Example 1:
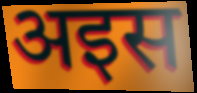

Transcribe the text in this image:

अइस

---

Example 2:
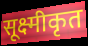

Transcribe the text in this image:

सूक्ष्मीकृत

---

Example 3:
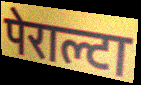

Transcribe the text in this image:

पेराल्टा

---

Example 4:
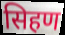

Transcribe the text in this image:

सिहण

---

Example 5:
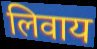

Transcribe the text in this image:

लिवाय